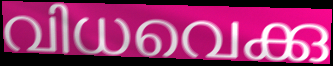
വിധവെക്കു